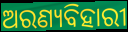
ଅରଣ୍ୟବିହାରୀ